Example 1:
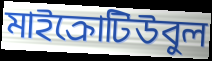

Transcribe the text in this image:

মাইক্রোটিউবুল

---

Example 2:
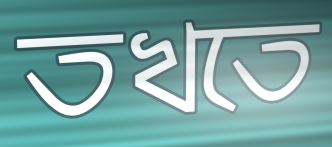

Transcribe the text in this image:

তখতে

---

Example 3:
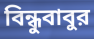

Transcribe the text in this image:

বিন্ধুবাবুর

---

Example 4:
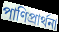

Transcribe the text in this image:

পাণিপ্রার্থনা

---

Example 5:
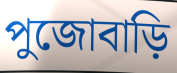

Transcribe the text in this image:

পুজোবাড়ি